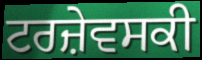
ਟਰਜ਼ੇਵਸਕੀ